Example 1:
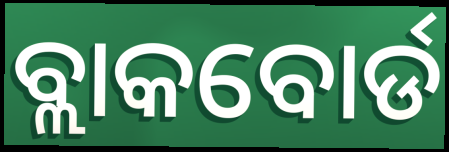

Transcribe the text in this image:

ବ୍ଲାକବୋର୍ଡ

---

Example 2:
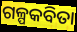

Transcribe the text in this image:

ଗଳ୍ପକବିତା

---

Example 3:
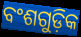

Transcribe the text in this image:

ବଂଶଗୁଡ଼ିକ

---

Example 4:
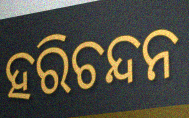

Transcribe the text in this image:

ହରିଚନ୍ଦନ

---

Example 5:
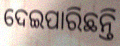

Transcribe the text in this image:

ଦେଇପାରିଛନ୍ତି